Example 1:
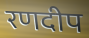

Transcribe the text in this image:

रणदीप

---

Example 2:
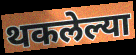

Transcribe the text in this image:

थकलेल्या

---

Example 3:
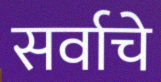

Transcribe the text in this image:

सर्वाचे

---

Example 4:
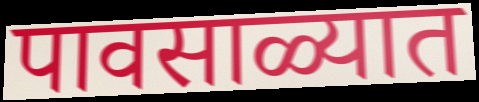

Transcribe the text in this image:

पावसाळ्यात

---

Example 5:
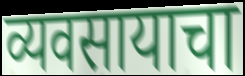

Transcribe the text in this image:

व्यवसायाचा